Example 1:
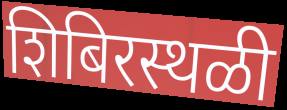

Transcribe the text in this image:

शिबिरस्थळी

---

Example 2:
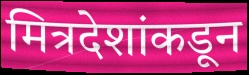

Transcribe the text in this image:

मित्रदेशांकडून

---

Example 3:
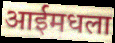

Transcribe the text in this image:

आईमधला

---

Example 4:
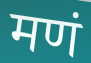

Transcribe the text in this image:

मणं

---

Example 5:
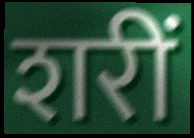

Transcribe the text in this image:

शरीं